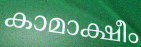
കാമാക്ഷീം